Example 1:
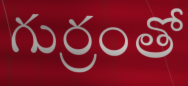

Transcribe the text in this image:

గుర్రంతో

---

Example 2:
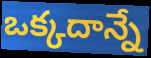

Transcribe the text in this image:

ఒక్కదాన్నే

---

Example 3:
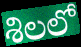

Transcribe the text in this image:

శిలలో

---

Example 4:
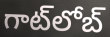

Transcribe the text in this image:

గాట్‍లోబ్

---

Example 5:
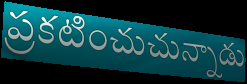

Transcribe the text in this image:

ప్రకటించుచున్నాడు